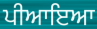
ਪੀਆਇਆ